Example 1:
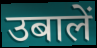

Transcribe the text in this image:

उबालें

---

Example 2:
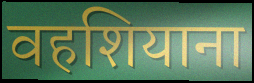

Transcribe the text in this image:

वहशियाना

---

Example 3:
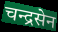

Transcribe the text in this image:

चन्द्रसेन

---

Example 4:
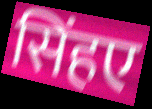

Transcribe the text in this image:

सिंहए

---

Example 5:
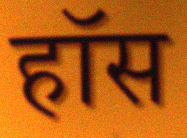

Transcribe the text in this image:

हॉस